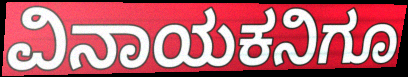
ವಿನಾಯಕನಿಗೂ